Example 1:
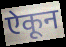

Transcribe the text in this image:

ऐकून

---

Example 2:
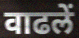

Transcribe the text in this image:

वाढलें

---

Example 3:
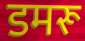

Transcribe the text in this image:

डमरू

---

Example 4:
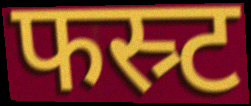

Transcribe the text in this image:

फस्र्ट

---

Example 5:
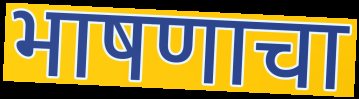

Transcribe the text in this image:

भाषणाचा